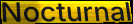
Nocturnal